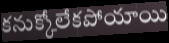
కనుక్కోలేకపోయాయి